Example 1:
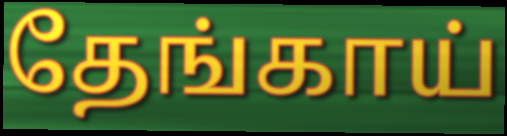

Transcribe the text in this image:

தேங்காய்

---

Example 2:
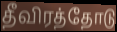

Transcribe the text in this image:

தீவிரத்தோடு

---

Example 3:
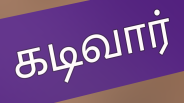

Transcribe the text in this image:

கடிவார்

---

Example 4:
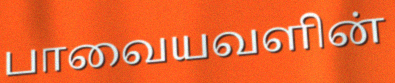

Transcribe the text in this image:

பாவையவளின்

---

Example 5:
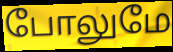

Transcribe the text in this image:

போலுமே